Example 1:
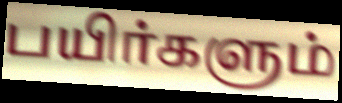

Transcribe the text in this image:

பயிர்களும்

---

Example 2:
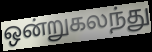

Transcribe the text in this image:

ஒன்றுகலந்து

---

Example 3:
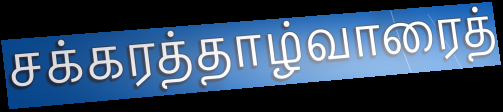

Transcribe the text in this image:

சக்கரத்தாழ்வாரைத்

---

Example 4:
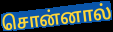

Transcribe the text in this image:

சொன்னால்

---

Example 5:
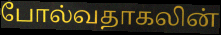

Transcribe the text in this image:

போல்வதாகலின்